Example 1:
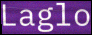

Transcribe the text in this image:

Laglo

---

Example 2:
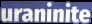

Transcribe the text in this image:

uraninite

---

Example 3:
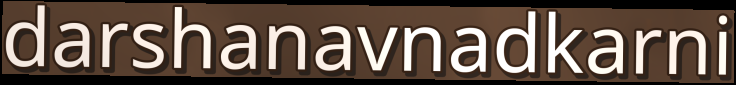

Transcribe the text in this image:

darshanavnadkarni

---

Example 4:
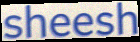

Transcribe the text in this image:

sheesh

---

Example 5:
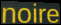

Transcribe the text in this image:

noire